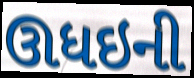
ઊધઇની